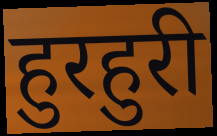
हुरहुरी